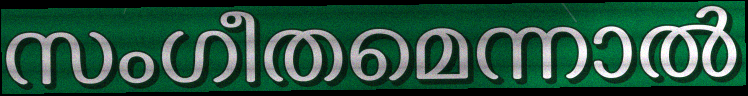
സംഗീതമെന്നാൽ